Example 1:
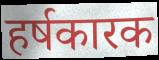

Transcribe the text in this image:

हर्षकारक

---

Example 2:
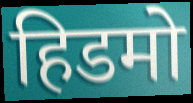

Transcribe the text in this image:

हिडमो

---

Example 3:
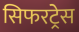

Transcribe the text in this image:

सिफरट्रेस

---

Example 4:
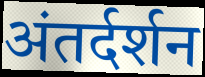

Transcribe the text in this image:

अंतर्दर्शन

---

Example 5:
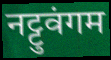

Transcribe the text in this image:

नट्टुवंगम